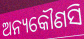
ଅନ୍ୟକୌଣସି